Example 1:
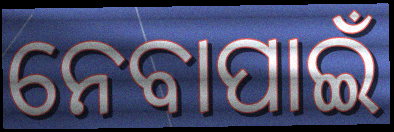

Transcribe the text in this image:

ନେବାପାଇଁ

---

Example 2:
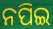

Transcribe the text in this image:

ନପିଇ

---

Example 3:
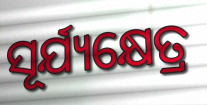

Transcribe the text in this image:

ସୂର୍ଯ୍ୟକ୍ଷେତ୍ର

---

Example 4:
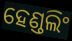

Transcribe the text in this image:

ହେଣ୍ଡଲିଂ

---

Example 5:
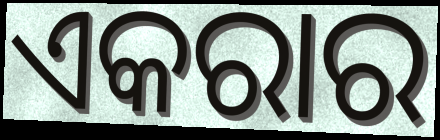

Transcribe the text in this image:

ଏକରାର